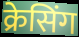
क्रेसिंग